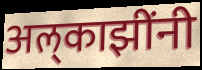
अल्काझींनी